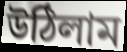
উঠিলাম